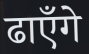
ढाएँगे